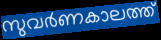
സുവർണകാലത്ത്